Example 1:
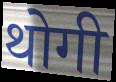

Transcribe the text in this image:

थोगी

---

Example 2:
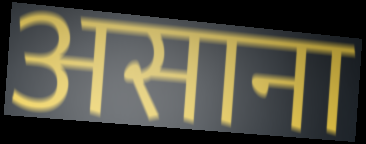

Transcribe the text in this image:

असाना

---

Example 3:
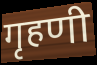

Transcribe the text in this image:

गृहणी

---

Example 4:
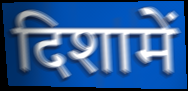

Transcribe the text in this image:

दिशामें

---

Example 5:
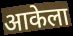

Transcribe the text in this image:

आकेला